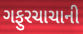
ગફુરચાચાની